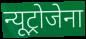
न्यूट्रोजेना